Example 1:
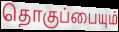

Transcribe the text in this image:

தொகுப்பையும்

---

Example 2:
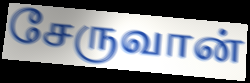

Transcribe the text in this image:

சேருவான்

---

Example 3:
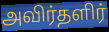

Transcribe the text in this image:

அவிர்தளிர்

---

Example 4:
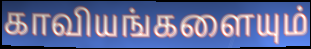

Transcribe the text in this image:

காவியங்களையும்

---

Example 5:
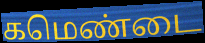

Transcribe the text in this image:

கமெண்டை